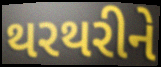
થરથરીને